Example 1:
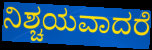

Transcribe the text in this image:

ನಿಶ್ಚಯವಾದರೆ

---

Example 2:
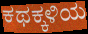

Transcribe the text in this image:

ಕಥಕ್ಕಳಿಯ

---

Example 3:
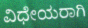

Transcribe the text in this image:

ವಿಧೇಯರಾಗಿ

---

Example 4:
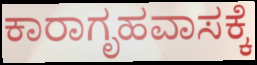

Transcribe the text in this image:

ಕಾರಾಗೃಹವಾಸಕ್ಕೆ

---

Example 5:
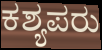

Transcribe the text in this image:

ಕಶ್ಯಪರು